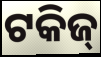
ଟକିଜ୍